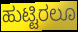
ಹುಟ್ಟಿರಲೂ